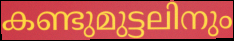
കണ്ടുമുട്ടലിനും